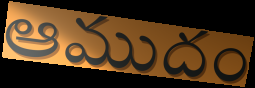
ఆముదం